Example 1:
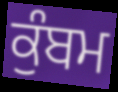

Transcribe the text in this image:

ਕੁੰਬਮ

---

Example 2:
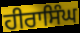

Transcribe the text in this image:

ਹੀਰਾਸਿੰਘ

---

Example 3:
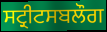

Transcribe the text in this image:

ਸਟ੍ਰੀਟਸਬਲੌਗ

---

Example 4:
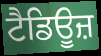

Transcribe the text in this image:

ਟੈਡਿਊਜ਼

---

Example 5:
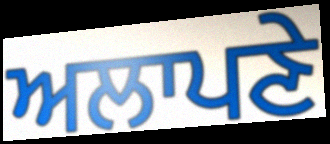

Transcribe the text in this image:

ਅਲਾਪਣੇ